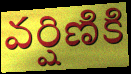
వర్షిణికి